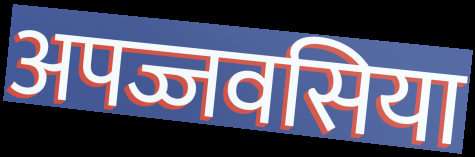
अपज्जवसिया